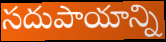
సదుపాయాన్ని